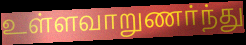
உள்ளவாறுணர்ந்து